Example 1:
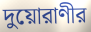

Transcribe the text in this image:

দুয়োরাণীর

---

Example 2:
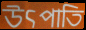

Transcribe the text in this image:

উৎপাতি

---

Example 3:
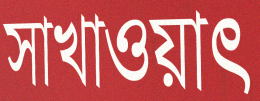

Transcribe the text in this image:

সাখাওয়াৎ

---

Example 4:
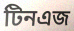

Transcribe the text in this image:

টিনএজ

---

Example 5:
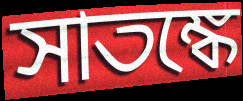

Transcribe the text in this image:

সাতঙ্কে